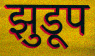
झुडूप